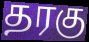
தரகு